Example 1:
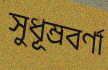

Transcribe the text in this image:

সুধূম্রবর্ণা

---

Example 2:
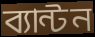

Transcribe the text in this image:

ব্যান্টন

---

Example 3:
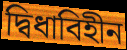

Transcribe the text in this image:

দ্বিধাবিহীন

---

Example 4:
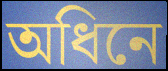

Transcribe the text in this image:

অধিনে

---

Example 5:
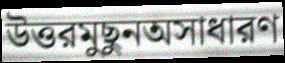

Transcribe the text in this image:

উত্তরমুছুনঅসাধারণ